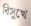
বিসুখে